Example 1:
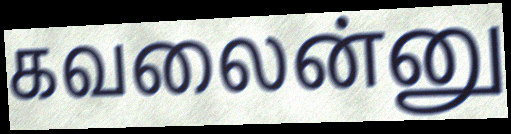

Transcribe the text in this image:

கவலைன்னு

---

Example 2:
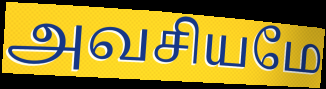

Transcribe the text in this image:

அவசியமே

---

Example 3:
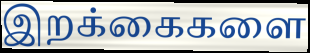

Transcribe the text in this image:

இறக்கைகளை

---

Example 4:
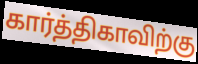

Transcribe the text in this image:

கார்த்திகாவிற்கு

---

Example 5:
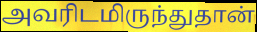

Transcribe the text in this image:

அவரிடமிருந்துதான்